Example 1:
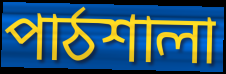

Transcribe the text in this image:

পাঠশালা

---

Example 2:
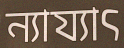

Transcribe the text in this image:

ন্যায্যাৎ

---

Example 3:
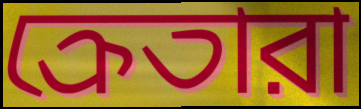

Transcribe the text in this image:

ক্রেতারা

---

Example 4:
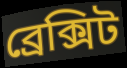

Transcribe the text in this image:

ব্রেক্সিট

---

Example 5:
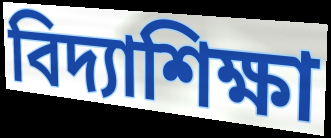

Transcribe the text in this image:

বিদ্যাশিক্ষা